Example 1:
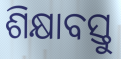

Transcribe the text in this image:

ଶିକ୍ଷାବସ୍ତୁ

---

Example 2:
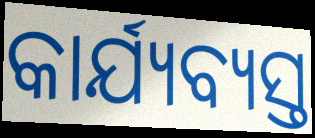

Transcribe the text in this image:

କାର୍ଯ୍ୟବ୍ୟସ୍ତ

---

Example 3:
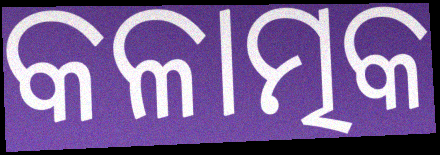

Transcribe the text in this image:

କଳାତ୍ମକ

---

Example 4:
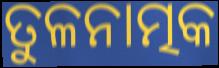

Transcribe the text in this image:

ତୁଳନାତ୍ମକ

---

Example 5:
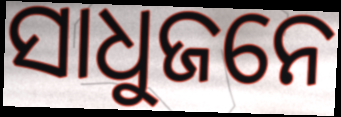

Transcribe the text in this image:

ସାଧୁଜନେ